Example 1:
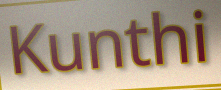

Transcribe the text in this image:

Kunthi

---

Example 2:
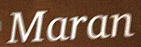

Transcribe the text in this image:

Maran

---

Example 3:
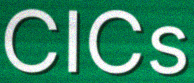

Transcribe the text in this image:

CICs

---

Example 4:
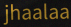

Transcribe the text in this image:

jhaalaa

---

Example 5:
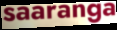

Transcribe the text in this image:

saaranga